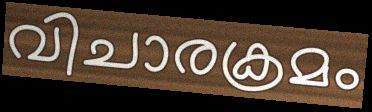
വിചാരക്രമം